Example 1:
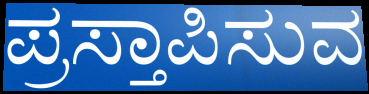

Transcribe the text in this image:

ಪ್ರಸ್ತಾಪಿಸುವ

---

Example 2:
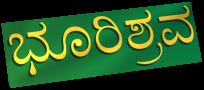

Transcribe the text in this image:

ಭೂರಿಶ್ರವ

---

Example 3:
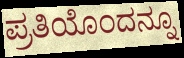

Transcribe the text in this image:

ಪ್ರತಿಯೊಂದನ್ನೂ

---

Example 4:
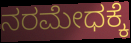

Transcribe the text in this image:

ನರಮೇಧಕ್ಕೆ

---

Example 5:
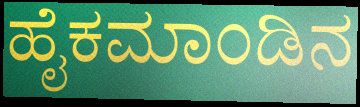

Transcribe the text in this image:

ಹೈಕಮಾಂಡಿನ